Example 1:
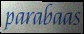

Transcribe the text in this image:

parabaas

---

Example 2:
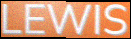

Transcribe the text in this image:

LEWIS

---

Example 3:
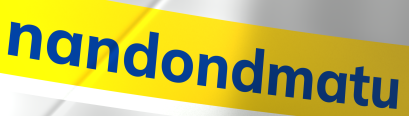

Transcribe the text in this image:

nandondmatu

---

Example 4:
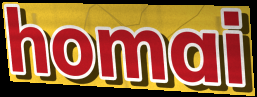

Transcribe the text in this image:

homai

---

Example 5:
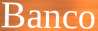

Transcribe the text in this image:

Banco